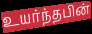
உயர்ந்தபின்